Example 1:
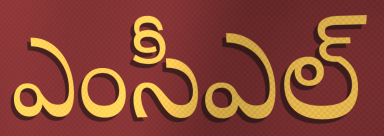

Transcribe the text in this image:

ఎంసీఎల్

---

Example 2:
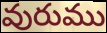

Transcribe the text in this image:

వురుము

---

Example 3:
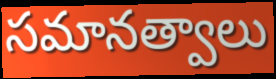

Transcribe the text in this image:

సమానత్వాలు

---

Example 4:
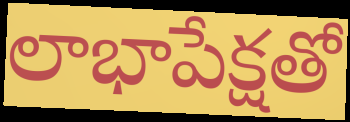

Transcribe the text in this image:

లాభాపేక్షతో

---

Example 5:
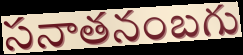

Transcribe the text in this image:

సనాతనంబగు